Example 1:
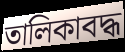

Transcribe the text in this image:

তালিকাবদ্ধ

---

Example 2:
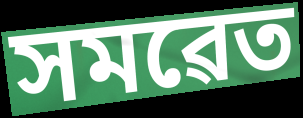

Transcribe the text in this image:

সমৱেত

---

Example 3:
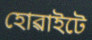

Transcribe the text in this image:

হোৱাইটে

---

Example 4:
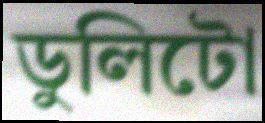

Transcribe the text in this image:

ডুলিটো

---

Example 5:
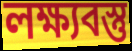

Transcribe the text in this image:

লক্ষ্যবস্তু